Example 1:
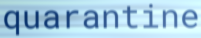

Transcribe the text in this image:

quarantine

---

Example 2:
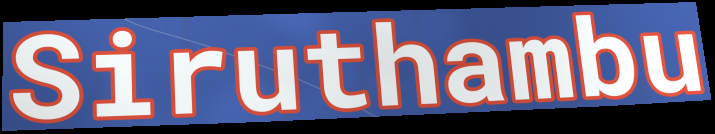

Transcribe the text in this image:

Siruthambu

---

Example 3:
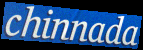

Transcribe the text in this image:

chinnada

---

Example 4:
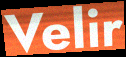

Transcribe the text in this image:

Velir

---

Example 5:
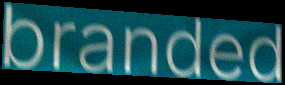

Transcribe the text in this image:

branded